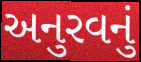
અનુરવનું